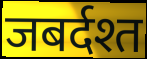
जबर्दश्त